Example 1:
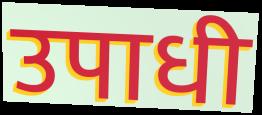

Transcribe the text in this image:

उपाधी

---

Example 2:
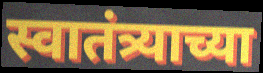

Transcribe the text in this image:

स्वातंत्र्याच्या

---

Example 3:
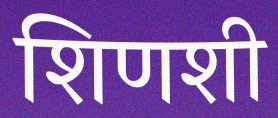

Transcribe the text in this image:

शिणशी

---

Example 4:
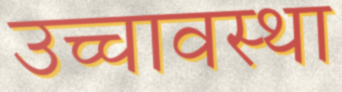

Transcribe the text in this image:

उच्चावस्था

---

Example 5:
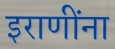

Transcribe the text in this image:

इराणींना